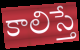
కాలిస్తే